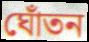
ঘোঁতন